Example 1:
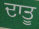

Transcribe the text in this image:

ਦਾਤੂ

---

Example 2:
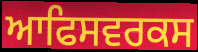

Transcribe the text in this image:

ਆਫਿਸਵਰਕਸ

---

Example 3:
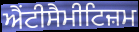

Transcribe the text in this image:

ਐਂਟੀਸੈਮੀਟਿਜ਼ਮ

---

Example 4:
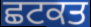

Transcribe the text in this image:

ਛਟਕਤ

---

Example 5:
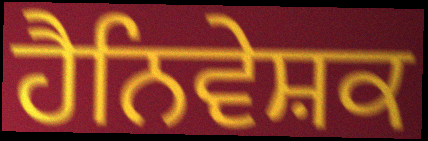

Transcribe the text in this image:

ਹੈਨਿਵੇਸ਼ਕ